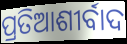
ପ୍ରତିଆଶୀର୍ବାଦ